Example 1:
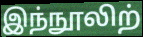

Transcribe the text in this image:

இந்நூலிற்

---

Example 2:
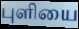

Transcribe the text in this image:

புளியை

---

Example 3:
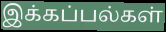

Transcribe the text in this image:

இக்கப்பல்கள்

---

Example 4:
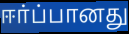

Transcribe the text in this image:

ஈர்ப்பானது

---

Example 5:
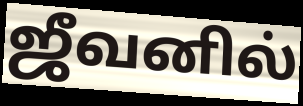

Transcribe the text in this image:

ஜீவனில்